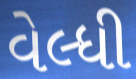
વેલ્ધી